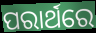
ପରାର୍ଥରେ